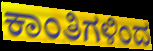
ಕಾಂತಿಗಳಿಂದ